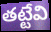
తట్టేవి